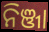
ନିଞ୍ଜା